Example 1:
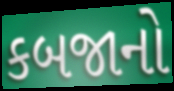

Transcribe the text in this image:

કબજાનો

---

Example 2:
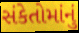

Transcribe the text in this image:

સંકેતોમાંનું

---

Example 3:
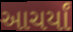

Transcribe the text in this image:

આચર્યાં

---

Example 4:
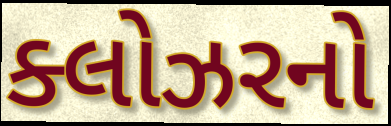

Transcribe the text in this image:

ક્લોઝરનો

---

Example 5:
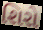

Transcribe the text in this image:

શિરો